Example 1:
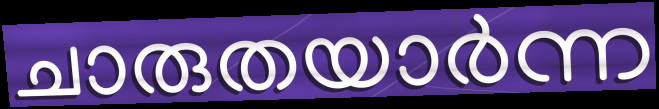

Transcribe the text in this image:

ചാരുതയാർന്ന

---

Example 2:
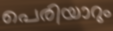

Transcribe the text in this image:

പെരിയാറും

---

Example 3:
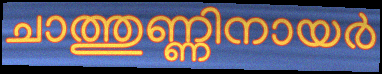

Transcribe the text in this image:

ചാത്തുണ്ണിനായർ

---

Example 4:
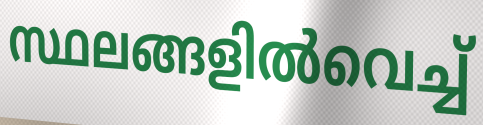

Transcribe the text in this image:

സ്ഥലങ്ങളിൽവെച്ച്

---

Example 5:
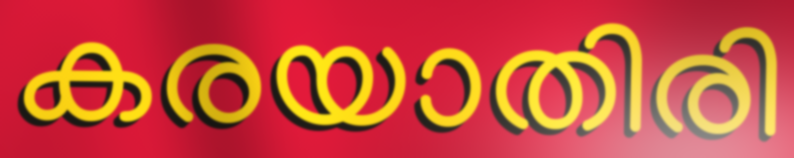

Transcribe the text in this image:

കരയാതിരി